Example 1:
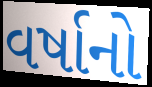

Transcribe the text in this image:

વર્ષાનો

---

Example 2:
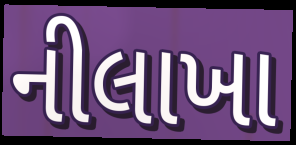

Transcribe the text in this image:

નીલાખા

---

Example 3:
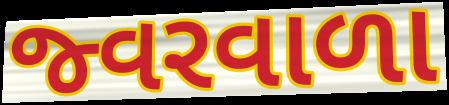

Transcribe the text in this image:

જ્વરવાળા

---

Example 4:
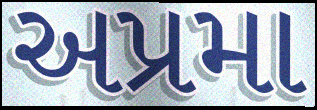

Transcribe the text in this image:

અપ્રમા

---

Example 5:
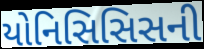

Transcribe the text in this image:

યોનિસિસિસની